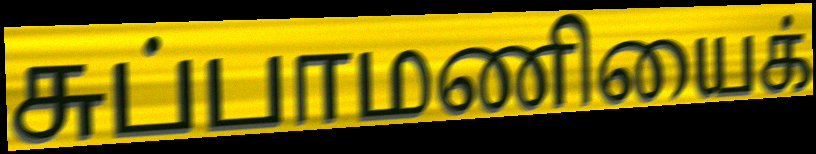
சுப்பாமணியைக்